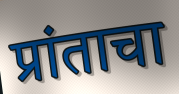
प्रांताचा